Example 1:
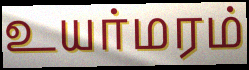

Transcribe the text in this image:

உயர்மரம்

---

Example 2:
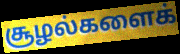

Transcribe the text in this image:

சூழல்களைக்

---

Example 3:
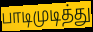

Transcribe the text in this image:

பாடிமுடித்து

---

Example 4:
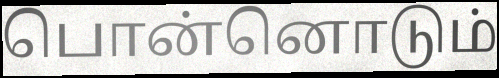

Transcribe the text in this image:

பொன்னொடும்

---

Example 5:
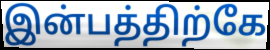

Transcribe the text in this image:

இன்பத்திற்கே